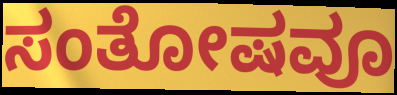
ಸಂತೋಷವೂ